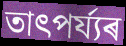
তাৎপৰ্য্যৰ